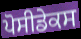
ਪੋਸੀਡੇਕਸ